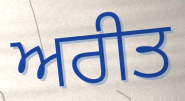
ਅਰੀਤ